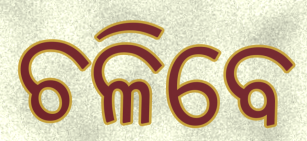
ଚଳିବେ